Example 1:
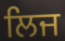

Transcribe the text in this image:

ਲਿਜ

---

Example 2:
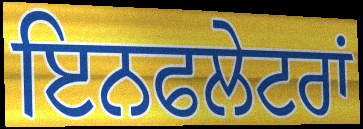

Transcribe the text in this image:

ਇਨਫਲੇਟਰਾਂ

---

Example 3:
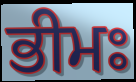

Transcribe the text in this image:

ਭੀਮਃ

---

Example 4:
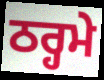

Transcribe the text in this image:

ਠਰ੍ਹਮੇ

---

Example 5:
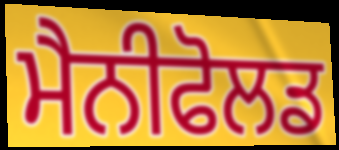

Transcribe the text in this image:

ਮੈਨੀਫੋਲਡ